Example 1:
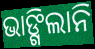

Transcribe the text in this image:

ଭାଙ୍ଗିଲାନି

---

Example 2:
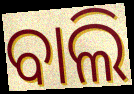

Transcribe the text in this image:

ବାଲି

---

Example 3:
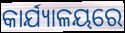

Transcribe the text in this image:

କାର୍ଯ୍ୟାଳୟରେ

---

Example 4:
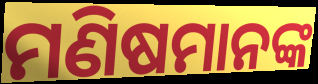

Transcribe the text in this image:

ମଣିଷମାନଙ୍କ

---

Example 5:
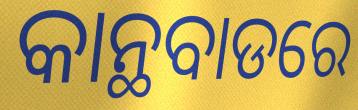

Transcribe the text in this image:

କାନ୍ଥବାଡରେ